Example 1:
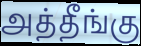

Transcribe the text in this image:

அத்தீங்கு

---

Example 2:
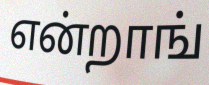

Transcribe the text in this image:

என்றாங்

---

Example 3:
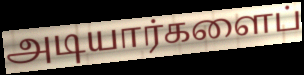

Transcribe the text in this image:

அடியார்களைப்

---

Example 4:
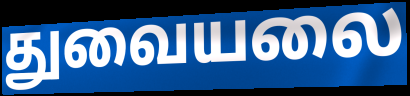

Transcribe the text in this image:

துவையலை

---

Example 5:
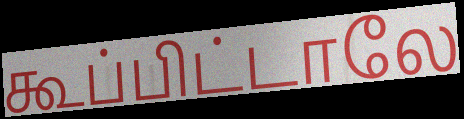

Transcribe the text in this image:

கூப்பிட்டாலே